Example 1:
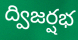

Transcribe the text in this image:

ద్విజర్షభ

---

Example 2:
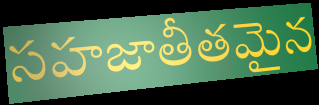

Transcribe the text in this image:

సహజాతీతమైన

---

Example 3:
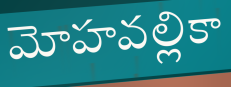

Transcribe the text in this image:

మోహవల్లికా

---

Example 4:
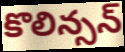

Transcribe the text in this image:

కొలిన్సన్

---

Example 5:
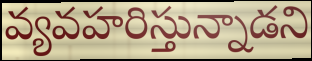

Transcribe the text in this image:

వ్యవహరిస్తున్నాడని